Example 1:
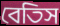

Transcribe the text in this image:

বেতিস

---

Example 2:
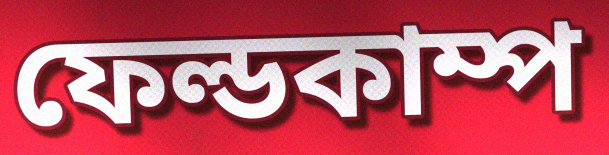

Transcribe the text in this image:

ফেল্ডকাম্প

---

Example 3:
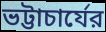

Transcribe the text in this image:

ভট্টাচার্যের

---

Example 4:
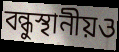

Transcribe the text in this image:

বন্ধুস্থানীয়ও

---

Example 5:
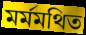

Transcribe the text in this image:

মর্মমথিত